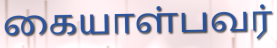
கையாள்பவர்